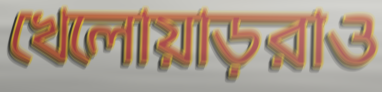
খেলোয়াড়রাও